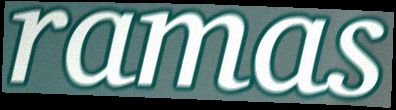
ramas